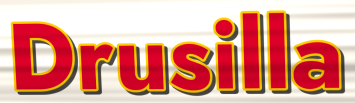
Drusilla